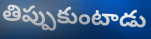
తిప్పుకుంటాడు